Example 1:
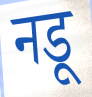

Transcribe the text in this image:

नडू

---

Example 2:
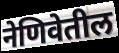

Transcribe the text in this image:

नेणिवेतील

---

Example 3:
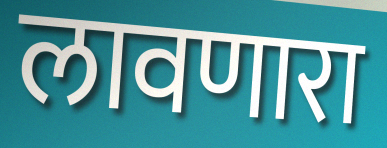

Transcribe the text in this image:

लावणारा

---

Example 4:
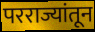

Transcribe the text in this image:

परराज्यांतून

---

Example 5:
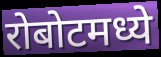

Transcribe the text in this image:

रोबोटमध्ये